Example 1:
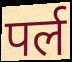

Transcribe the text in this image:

पर्ल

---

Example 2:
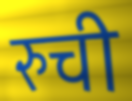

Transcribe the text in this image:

रुची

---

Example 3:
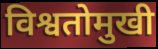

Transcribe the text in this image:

विश्वतोमुखी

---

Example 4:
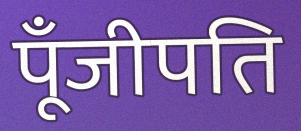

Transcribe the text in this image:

पूँजीपति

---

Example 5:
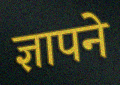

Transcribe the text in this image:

ज्ञापने